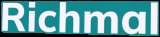
Richmal